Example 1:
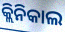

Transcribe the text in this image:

କ୍ଲିନିକାଲ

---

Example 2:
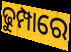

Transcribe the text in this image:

ଢୁମ୍ପାରେ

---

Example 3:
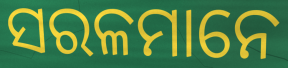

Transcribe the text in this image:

ସରଳମାନେ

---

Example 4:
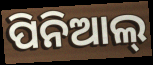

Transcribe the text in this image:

ପିନିଆଲ୍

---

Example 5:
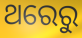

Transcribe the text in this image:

ଥରେରୁ